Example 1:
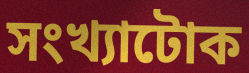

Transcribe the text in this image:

সংখ্যাটোক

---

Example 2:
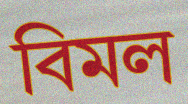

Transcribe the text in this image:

বিমল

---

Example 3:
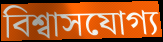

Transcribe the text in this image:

বিশ্বাসযোগ্য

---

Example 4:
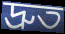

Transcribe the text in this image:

দ্ৰুত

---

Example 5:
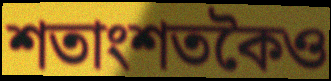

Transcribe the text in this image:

শতাংশতকৈও